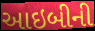
આઇબીની